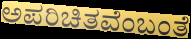
ಅಪರಿಚಿತವೆಂಬಂತೆ